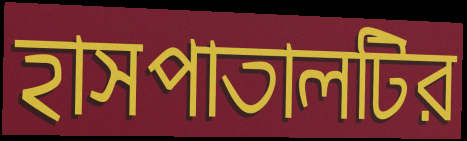
হাসপাতালটির